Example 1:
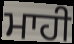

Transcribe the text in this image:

ਮਾਹੀ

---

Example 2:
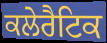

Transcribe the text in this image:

ਕਲੇਰੈਟਿਕ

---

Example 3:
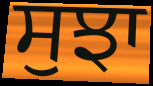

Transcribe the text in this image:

ਸੁਝਾ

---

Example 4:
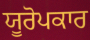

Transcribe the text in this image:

ਯੂਰੋਪਕਾਰ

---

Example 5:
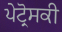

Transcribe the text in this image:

ਪੇਟ੍ਰੋਸਕੀ